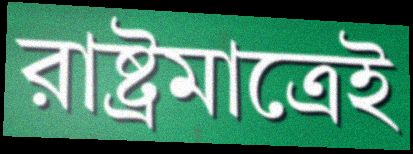
রাষ্ট্রমাত্রেই